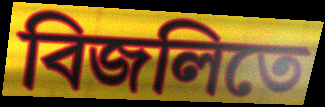
বিজলিতে